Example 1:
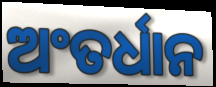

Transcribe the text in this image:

ଅଂତର୍ଧାନ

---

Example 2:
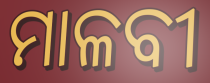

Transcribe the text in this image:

ମାଳବୀ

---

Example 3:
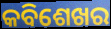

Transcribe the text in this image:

କବିଶେଖର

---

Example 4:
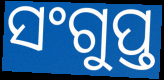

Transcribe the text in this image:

ସଂଗୁପ୍ତ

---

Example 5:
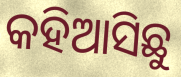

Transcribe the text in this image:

କହିଆସିଛୁ